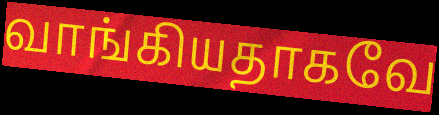
வாங்கியதாகவே